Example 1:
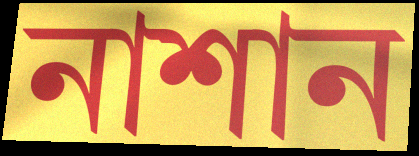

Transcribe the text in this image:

নাশান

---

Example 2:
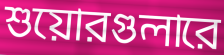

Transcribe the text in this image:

শুয়োরগুলারে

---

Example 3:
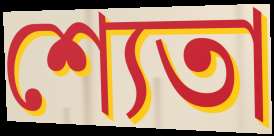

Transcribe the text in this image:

শ্যেতা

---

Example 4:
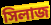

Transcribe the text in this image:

সিলাজ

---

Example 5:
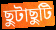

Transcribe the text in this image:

ছুটাছুটি